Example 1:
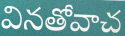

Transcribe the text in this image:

వినతోవాచ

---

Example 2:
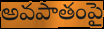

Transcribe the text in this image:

అవపాతంపై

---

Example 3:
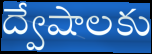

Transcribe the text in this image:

ద్వేషాలకు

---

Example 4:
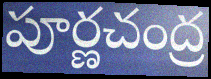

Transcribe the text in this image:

పూర్ణచంద్ర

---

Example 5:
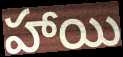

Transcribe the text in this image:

హాయి